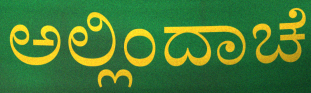
ಅಲ್ಲಿಂದಾಚೆ